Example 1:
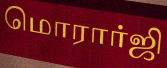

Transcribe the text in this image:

மொரார்ஜி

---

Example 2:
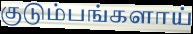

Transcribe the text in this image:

குடும்பங்களாய்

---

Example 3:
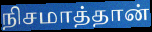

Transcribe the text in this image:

நிசமாத்தான்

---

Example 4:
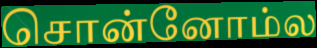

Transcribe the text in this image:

சொன்னோம்ல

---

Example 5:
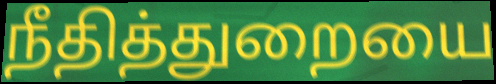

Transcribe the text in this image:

நீதித்துறையை